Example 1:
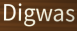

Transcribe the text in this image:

Digwas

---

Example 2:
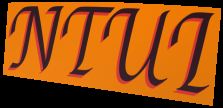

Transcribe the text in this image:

NTUI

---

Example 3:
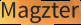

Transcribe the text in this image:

Magzter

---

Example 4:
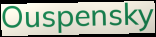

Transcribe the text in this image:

Ouspensky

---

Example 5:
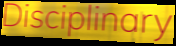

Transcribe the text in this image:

Disciplinary